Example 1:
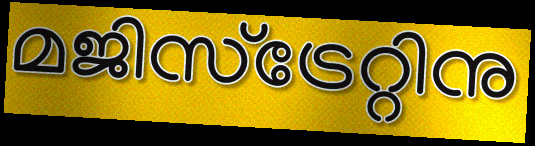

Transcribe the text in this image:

മജിസ്ട്രേറ്റിനു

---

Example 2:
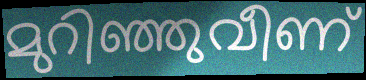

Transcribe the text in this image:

മുറിഞ്ഞുവീണ്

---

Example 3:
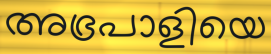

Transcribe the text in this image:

അഭ്രപാളിയെ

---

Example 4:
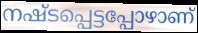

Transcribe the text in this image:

നഷ്ടപ്പെട്ടപ്പോഴാണ്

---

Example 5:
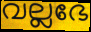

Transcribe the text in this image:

വല്ലഭേ